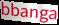
bbanga